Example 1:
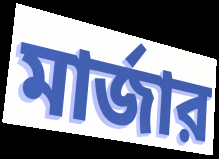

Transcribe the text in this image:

মার্জার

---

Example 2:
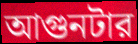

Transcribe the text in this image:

আগুনটার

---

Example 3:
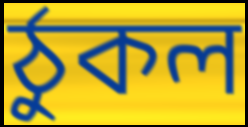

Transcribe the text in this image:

ঠুকল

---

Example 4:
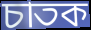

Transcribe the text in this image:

চাতক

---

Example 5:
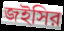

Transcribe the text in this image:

জইসির